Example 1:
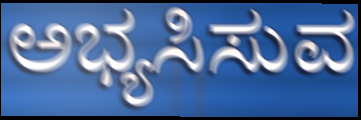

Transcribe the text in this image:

ಅಭ್ಯಸಿಸುವ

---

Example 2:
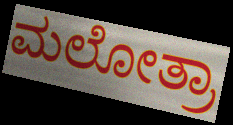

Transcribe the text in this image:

ಮಲೋತ್ರಾ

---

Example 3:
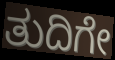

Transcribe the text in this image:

ತುದಿಗೇ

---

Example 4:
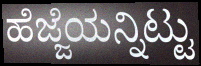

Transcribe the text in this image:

ಹೆಜ್ಜೆಯನ್ನಿಟ್ಟು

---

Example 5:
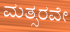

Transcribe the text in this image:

ಮತ್ಸರವೇ